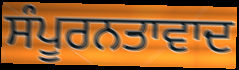
ਸੰਪੂਰਨਤਾਵਾਦ